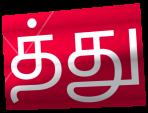
த்து